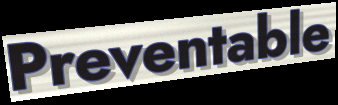
Preventable